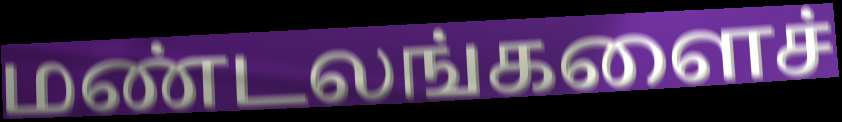
மண்டலங்களைச்